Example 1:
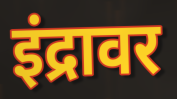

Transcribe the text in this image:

इंद्रावर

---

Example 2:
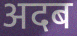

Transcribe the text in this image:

अदब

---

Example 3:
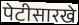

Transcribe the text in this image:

पेटीसारखे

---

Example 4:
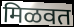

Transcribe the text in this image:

मिळवत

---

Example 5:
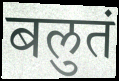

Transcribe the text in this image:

बलुतं